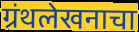
ग्रंथलेखनाचा